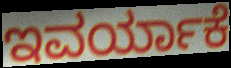
ಇವರ್ಯಾಕೆ